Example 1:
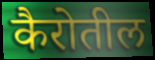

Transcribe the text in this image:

कैरोतील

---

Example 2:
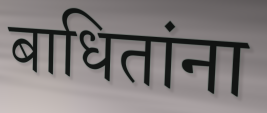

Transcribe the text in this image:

बाधितांना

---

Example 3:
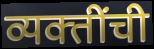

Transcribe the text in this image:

व्यक्‍तींची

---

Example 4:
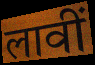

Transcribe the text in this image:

लावीं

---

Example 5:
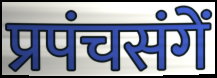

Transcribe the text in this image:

प्रपंचसंगें